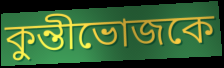
কুন্তীভোজকে